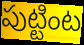
పుట్టింట